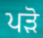
ਪੜੋ